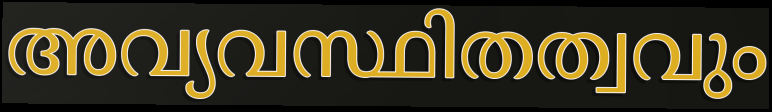
അവ്യവസ്ഥിതത്വവും